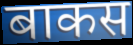
बाकस